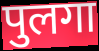
पुलगा